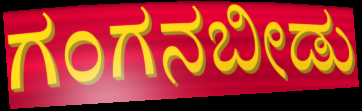
ಗಂಗನಬೀಡು